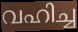
വഹിച്ച